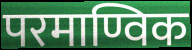
परमाण्विक